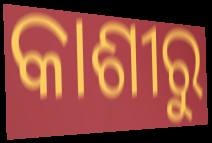
କାଶୀରୁ